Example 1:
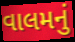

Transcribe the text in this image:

વાલમનું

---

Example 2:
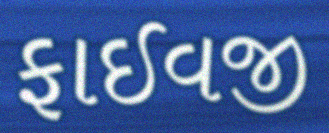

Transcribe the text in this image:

ફાઈવજી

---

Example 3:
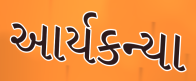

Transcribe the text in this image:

આર્યકન્યા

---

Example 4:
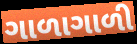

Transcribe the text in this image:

ગાળાગાળી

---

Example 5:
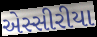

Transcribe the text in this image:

એસ્સીરીયા